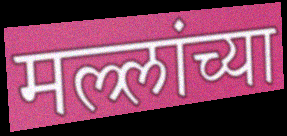
मल्लांच्या